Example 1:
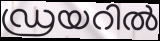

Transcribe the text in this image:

ഡ്രയറിൽ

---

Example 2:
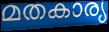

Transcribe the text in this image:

മതകാര്യ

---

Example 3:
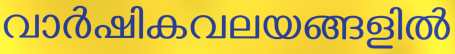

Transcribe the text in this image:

വാർഷികവലയങ്ങളിൽ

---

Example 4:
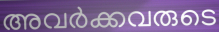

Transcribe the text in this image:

അവർക്കവരുടെ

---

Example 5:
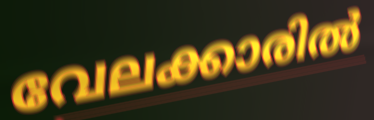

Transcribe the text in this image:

വേലക്കാരിൽ